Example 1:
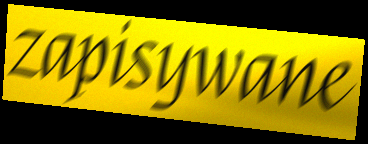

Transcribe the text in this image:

zapisywane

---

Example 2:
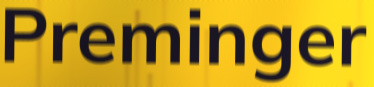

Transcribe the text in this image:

Preminger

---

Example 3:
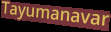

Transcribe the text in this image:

Tayumanavar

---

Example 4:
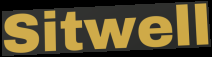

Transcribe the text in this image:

Sitwell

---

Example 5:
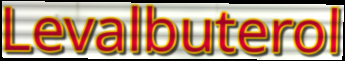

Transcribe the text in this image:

Levalbuterol